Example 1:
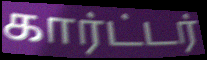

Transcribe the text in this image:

கார்ட்டர்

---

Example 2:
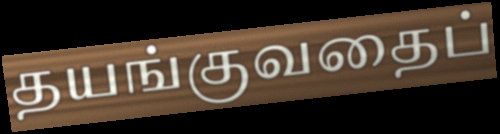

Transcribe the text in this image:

தயங்குவதைப்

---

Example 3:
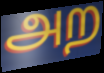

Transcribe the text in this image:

அற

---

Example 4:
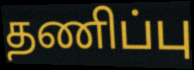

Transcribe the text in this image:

தணிப்பு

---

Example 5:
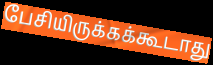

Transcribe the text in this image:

பேசியிருக்கக்கூடாது